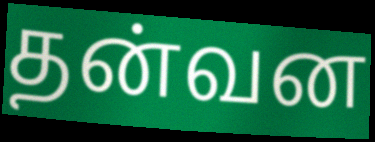
தன்வன